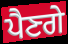
ਪੈਣਗੇ